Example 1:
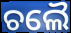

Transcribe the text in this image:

ଚଲୈ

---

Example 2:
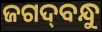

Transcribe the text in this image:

ଜଗଦ୍‌ବନ୍ଧୁ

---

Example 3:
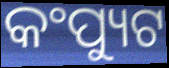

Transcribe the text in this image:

କଂପ୍ୟୁଟ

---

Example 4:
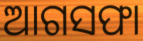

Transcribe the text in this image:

ଆଗସଫା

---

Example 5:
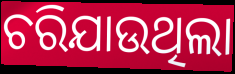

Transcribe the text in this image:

ଚରିଯାଉଥିଲା